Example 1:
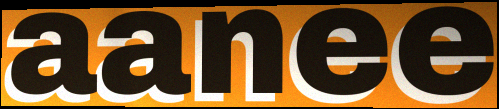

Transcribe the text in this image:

aanee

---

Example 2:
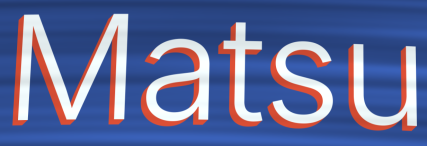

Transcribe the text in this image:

Matsu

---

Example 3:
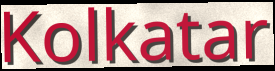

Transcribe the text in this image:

Kolkatar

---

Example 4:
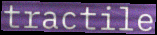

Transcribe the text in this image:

tractile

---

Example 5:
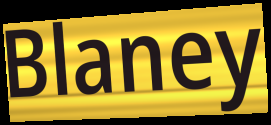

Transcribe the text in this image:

Blaney